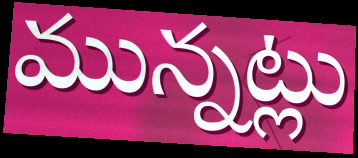
మున్నట్లు